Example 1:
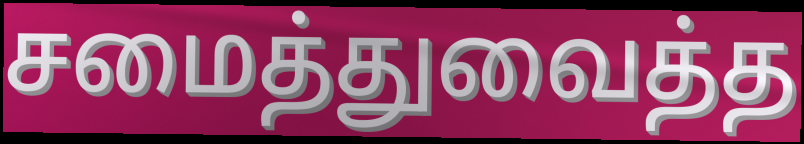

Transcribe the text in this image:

சமைத்துவைத்த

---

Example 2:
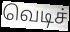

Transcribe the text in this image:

வெடிச்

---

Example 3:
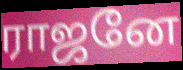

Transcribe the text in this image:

ராஜனே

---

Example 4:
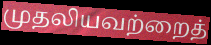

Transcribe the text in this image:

முதலியவற்றைத்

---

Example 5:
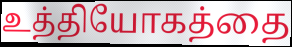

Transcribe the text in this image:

உத்தியோகத்தை